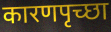
कारणपृच्छा